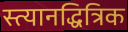
स्त्यानद्धित्रिक